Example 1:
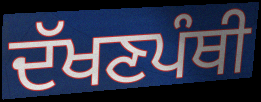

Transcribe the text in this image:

ਦੱਖਣਪੰਥੀ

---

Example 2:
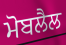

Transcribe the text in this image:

ਮੋਬਲੈਲ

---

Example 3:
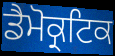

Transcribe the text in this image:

ਡੈਮੋਕ੍ਰਟਿਕ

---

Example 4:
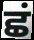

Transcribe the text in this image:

ਛਂ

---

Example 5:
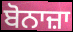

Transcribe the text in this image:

ਬੋਨਾਜ਼ਾ